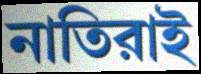
নাতিরাই